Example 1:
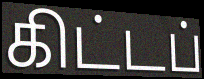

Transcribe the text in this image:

கிட்டப்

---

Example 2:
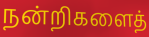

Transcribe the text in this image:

நன்றிகளைத்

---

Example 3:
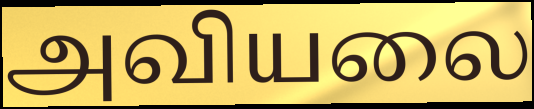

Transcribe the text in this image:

அவியலை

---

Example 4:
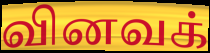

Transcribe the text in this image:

வினவக்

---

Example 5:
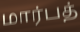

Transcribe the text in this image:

மார்பத்